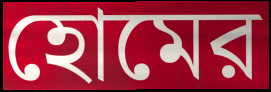
হোমের